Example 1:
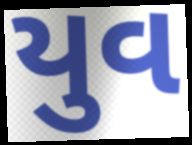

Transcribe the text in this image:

યુવ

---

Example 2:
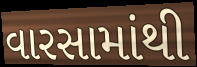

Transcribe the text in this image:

વારસામાંથી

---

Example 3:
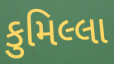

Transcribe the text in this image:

કુમિલ્લા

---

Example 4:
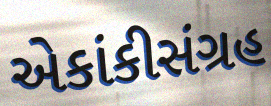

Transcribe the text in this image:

એકાંકીસંગ્રહ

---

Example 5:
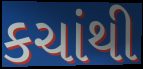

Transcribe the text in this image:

કચાંથી